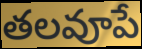
తలవూపే